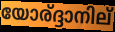
യോര്ദ്ദാനില്